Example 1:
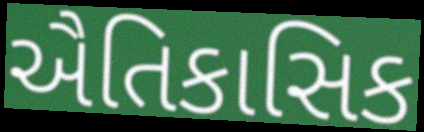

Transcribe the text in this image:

ઐતિકાસિક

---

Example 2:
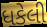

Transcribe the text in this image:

ધકેલી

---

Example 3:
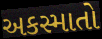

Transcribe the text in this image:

અકસ્માતો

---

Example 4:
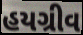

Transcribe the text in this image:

હયગ્રીવ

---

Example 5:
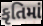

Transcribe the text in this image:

કૃતિમાં